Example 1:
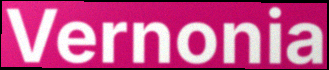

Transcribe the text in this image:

Vernonia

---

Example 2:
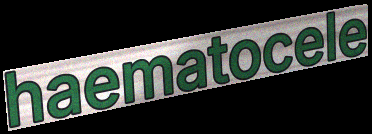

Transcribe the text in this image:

haematocele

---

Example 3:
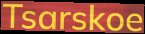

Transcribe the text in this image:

Tsarskoe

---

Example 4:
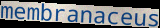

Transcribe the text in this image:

membranaceus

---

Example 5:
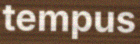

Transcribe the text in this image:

tempus